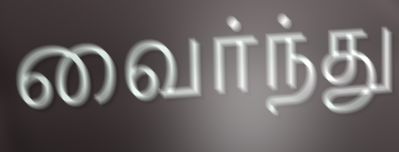
வைர்ந்து